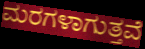
ಮರಗಳಾಗುತ್ತವೆ